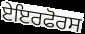
ਏਇਰਫੋਰਸ